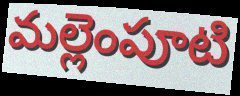
మల్లెంపూటి